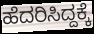
ಹೆದರಿಸಿದ್ದಕ್ಕೆ